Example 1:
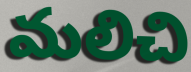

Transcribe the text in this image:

మలిచి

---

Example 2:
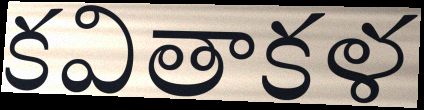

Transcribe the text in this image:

కవితాకళ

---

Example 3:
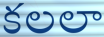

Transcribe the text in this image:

కలలా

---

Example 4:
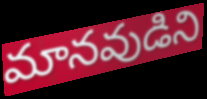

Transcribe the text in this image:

మానవుడిని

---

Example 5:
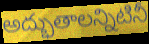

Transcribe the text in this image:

అద్భుతాలన్నిటినీ